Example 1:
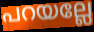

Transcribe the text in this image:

പറയല്ലേ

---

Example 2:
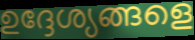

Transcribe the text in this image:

ഉദ്ദേശ്യങ്ങളെ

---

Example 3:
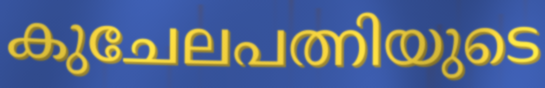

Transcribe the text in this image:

കുചേലപത്നിയുടെ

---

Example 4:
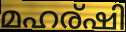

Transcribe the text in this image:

മഹര്ഷി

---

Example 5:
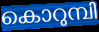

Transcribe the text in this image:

കൊറുമ്പി